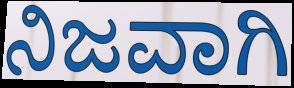
ನಿಜವಾಗಿ